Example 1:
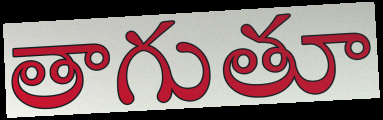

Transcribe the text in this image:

తాగుతూ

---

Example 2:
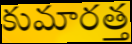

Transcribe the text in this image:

కుమారత్త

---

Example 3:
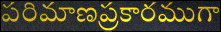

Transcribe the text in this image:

పరిమాణప్రకారముగా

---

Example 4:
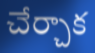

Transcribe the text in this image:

చేర్చాక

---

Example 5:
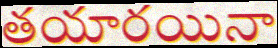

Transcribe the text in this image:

తయారయినా